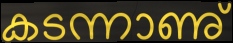
കടന്നാണു്